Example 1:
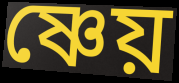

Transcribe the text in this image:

ষ্ণেয়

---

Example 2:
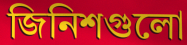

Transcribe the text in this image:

জিনিশগুলো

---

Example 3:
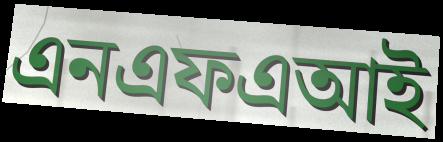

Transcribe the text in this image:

এনএফএআই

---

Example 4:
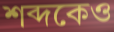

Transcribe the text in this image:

শব্দকেও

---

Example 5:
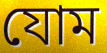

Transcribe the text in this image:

যোম